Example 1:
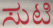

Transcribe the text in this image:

ಸುಟಿ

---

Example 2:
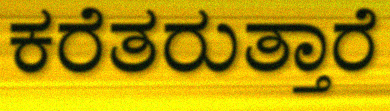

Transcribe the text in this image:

ಕರೆತರುತ್ತಾರೆ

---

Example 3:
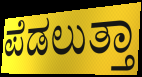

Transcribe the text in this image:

ಪೆಡಲುತ್ತಾ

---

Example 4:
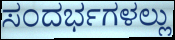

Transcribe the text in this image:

ಸಂದರ್ಭಗಳಲ್ಲು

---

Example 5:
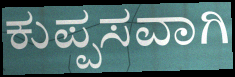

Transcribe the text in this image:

ಕುಪ್ಪಸವಾಗಿ